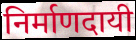
निर्माणदायी